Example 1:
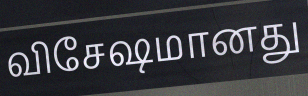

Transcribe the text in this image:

விசேஷமானது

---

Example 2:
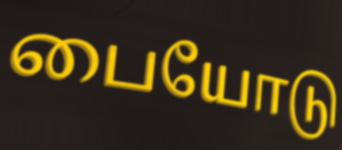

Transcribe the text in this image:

பையோடு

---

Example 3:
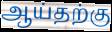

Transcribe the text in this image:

ஆய்தற்கு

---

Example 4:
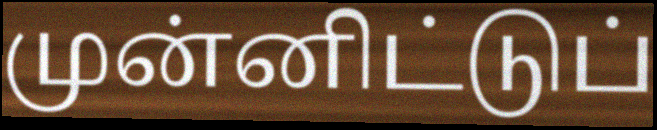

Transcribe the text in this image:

முன்னிட்டுப்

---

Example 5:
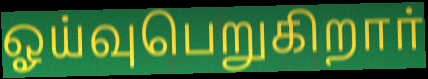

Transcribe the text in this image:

ஓய்வுபெறுகிறார்